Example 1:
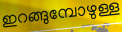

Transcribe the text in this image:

ഇറങ്ങുമ്പോഴുള്ള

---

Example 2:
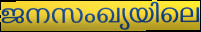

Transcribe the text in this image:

ജനസംഖ്യയിലെ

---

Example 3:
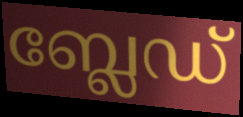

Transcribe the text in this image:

ബ്ലേഡ്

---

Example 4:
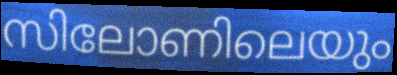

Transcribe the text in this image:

സിലോണിലെയും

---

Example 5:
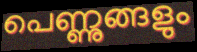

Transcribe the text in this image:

പെണ്ണുങ്ങളും